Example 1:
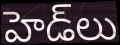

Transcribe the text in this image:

హెడ్‌లు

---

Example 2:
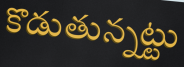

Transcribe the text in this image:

కొడుతున్నట్టు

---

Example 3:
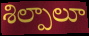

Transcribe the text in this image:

శిల్పాలూ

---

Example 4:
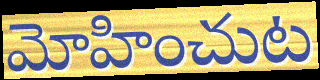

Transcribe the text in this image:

మోహించుట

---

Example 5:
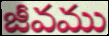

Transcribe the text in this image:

జీవము